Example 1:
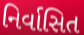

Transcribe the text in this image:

નિર્વાસિત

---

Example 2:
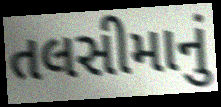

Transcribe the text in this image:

તલસીમાનું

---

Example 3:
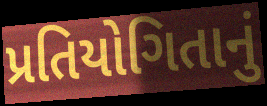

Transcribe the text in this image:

પ્રતિયોગિતાનું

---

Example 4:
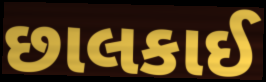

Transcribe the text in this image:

છાલકાઈ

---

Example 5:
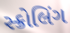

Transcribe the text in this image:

સ્ક્રોલિંગ